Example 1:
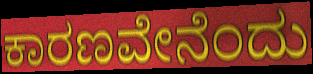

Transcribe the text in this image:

ಕಾರಣವೇನೆಂದು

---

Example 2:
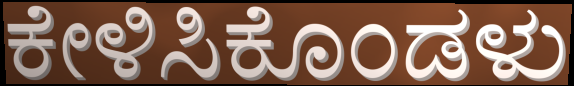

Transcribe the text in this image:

ಕೇಳಿಸಿಕೊಂಡಳು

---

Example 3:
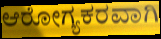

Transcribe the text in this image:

ಆರೋಗ್ಯಕರವಾಗಿ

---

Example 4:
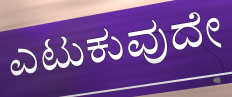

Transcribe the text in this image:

ಎಟುಕುವುದೇ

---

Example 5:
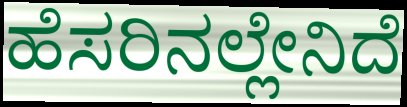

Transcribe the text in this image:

ಹೆಸರಿನಲ್ಲೇನಿದೆ